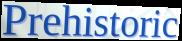
Prehistoric